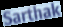
Sarthak